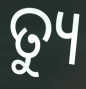
ତ୍ୟୁ